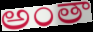
అంతా